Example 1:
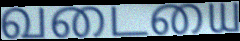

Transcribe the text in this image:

வடையை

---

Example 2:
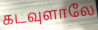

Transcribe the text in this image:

கடவுளாலே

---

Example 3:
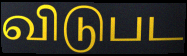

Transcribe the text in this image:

விடுபட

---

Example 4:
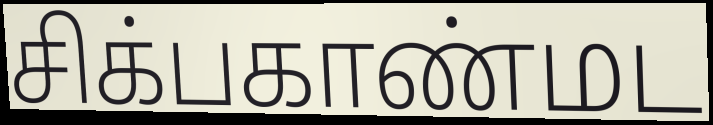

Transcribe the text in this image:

சிக்பகாண்மட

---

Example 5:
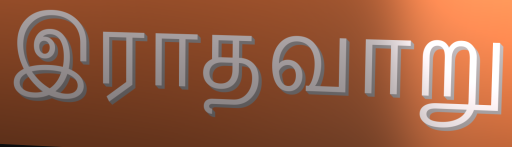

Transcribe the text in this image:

இராதவாறு